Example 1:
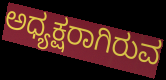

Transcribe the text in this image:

ಅಧ್ಯಕ್ಷರಾಗಿರುವ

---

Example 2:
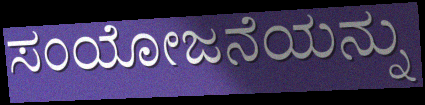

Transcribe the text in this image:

ಸಂಯೋಜನೆಯನ್ನು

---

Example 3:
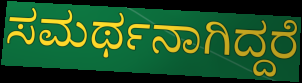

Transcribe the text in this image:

ಸಮರ್ಥನಾಗಿದ್ದರೆ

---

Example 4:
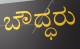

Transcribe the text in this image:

ಬೌದ್ಧರು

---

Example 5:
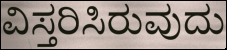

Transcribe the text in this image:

ವಿಸ್ತರಿಸಿರುವುದು